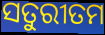
ସତୁରୀତମ